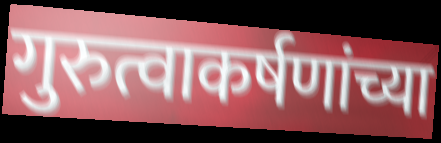
गुरुत्वाकर्षणांच्या